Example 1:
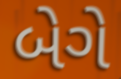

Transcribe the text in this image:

બેગે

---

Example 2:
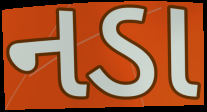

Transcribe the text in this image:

નડા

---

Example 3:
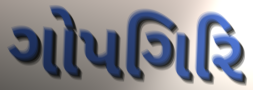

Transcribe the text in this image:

ગોપગિરિ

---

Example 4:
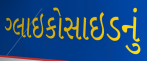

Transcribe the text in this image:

ગ્લાઇકોસાઇડનું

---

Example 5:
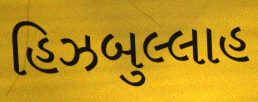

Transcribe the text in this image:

હિઝબુલ્લાહ